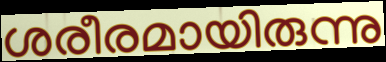
ശരീരമായിരുന്നു